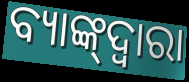
ବ୍ୟାଙ୍କ୍‌ଦ୍ୱାରା